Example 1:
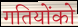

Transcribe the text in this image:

गतियोंको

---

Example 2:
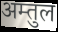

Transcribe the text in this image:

अम्तुल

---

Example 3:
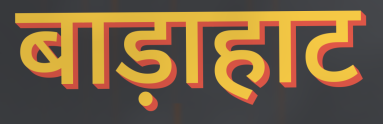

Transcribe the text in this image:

बाड़ाहाट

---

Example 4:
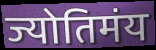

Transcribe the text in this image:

ज्योतिमंय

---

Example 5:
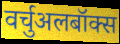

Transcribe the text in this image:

वर्चुअलबॉक्स